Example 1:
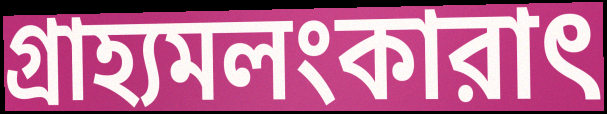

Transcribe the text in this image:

গ্রাহ্যমলংকারাৎ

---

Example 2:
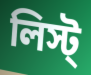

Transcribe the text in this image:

লিস্ট্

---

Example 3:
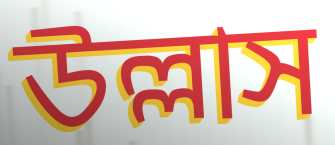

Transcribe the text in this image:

উল্লাস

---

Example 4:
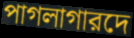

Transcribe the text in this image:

পাগলাগারদে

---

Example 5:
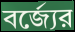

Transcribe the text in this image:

বর্জ্যের